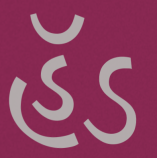
હૅડ